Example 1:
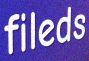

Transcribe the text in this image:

fileds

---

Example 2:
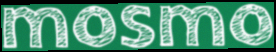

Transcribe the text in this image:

mosmo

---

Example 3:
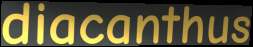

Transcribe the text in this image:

diacanthus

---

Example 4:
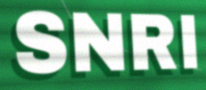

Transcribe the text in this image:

SNRI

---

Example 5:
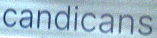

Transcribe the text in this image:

candicans